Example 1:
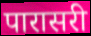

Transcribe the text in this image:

पारासरी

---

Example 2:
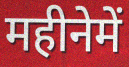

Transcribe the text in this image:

महीनेमें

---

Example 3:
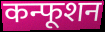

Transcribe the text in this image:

कन्फूशन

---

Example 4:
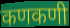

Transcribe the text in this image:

कणकणी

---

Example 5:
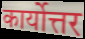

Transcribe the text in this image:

कार्योत्तर